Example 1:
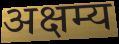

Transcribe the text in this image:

अक्षम्य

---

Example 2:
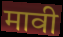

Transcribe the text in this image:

मावी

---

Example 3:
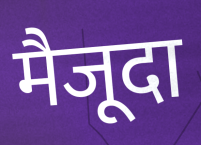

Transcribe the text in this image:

मैजूदा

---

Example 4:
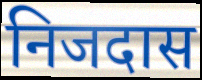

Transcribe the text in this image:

निजदास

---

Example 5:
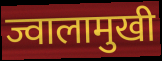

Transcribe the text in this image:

ज्वालामुखी